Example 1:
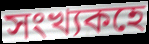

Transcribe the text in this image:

সংখ্যকহে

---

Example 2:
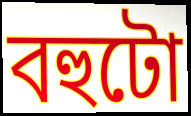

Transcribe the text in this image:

বহুটো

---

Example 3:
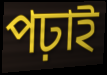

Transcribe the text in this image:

পঢ়াই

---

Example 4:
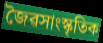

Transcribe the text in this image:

জৈৱসাংস্কৃতিক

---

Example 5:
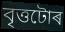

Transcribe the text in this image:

বৃত্তটোৰ